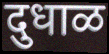
दुधाळ